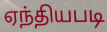
ஏந்தியபடி